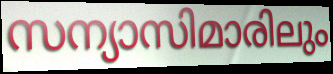
സന്യാസിമാരിലും